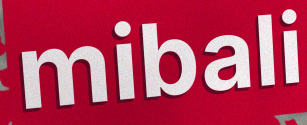
mibali